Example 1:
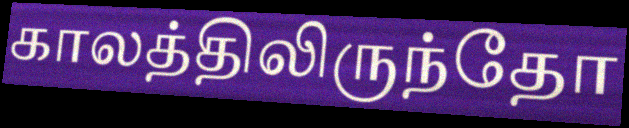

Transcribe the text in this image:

காலத்திலிருந்தோ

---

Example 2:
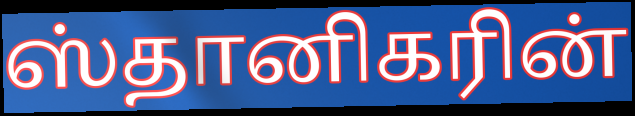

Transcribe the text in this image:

ஸ்தானிகரின்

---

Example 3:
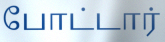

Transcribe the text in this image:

போட்டார்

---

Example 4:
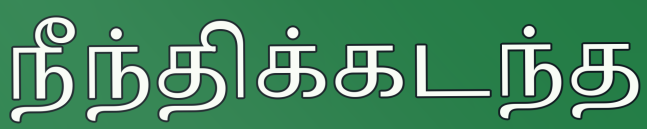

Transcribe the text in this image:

நீந்திக்கடந்த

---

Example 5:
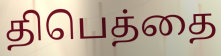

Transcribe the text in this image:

திபெத்தை